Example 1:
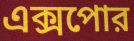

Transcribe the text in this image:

এক্সপোর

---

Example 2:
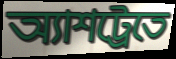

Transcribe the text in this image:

অ্যাশট্রেতে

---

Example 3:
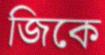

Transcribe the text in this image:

জিকে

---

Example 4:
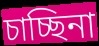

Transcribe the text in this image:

চাচ্ছিনা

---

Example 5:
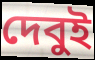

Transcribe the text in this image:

দেবুই